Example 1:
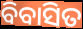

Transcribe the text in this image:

ବିବାସିତ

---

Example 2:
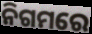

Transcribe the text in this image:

ନିଗମରେ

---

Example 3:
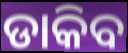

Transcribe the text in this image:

ଡାକିବ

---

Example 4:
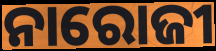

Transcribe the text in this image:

ନାରୋଜୀ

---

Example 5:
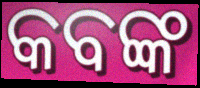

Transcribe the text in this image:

କବଙ୍କ